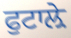
ਫੁਟਾਲ਼ੇ